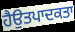
ਹੈਉਤਪਾਦਕਤਾ